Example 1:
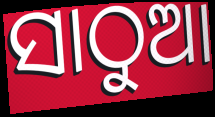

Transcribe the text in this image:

ସାଠୁଆ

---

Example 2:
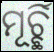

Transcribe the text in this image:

ମୂର୍ଚ୍ଛି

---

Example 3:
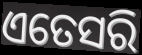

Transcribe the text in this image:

ଏତେସରି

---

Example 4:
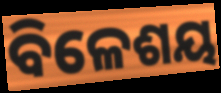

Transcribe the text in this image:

ବିଳେଶୟ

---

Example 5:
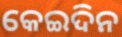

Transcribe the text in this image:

କେଇଦିନ